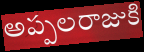
అప్పలరాజుకి